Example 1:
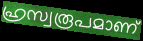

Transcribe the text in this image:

ഹ്രസ്വരൂപമാണ്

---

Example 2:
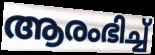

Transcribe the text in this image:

ആരംഭിച്ച്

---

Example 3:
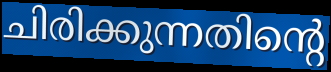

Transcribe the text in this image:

ചിരിക്കുന്നതിന്റെ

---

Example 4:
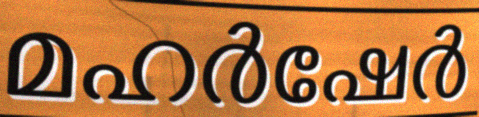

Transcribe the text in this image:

മഹർഷേർ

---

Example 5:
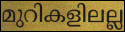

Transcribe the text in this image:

മുറികളിലല്ല